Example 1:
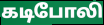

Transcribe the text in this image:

கடிபோலி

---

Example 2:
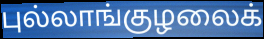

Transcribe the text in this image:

புல்லாங்குழலைக்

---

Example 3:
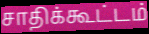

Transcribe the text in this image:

சாதிக்கூட்டம்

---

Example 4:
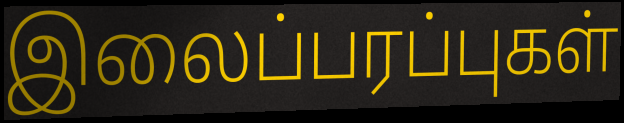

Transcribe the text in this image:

இலைப்பரப்புகள்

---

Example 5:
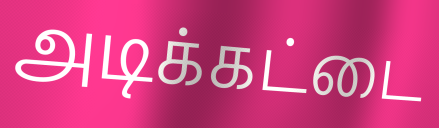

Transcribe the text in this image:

அடிக்கட்டை